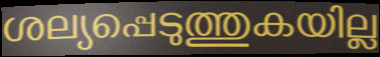
ശല്യപ്പെടുത്തുകയില്ല